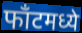
फाँटमध्ये